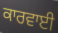
ਕਾਰਵਾਈ